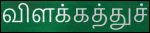
விளக்கத்துச்